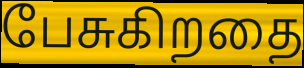
பேசுகிறதை